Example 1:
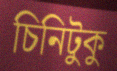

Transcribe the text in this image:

চিনিটুকু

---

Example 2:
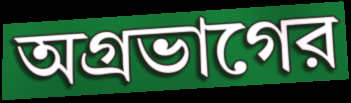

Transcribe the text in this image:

অগ্রভাগের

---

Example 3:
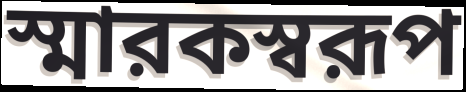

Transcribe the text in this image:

স্মারকস্বরূপ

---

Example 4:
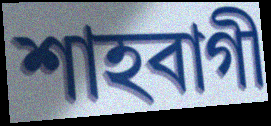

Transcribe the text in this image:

শাহবাগী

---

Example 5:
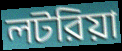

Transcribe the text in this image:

লটরিয়া